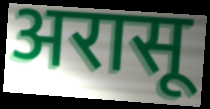
अरासू